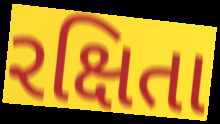
રક્ષિતા